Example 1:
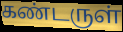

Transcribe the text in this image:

கண்டருள்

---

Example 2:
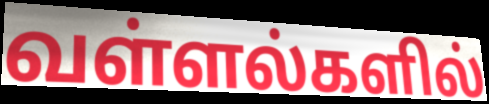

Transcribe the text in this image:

வள்ளல்களில்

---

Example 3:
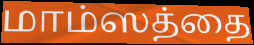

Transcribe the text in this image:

மாம்ஸத்தை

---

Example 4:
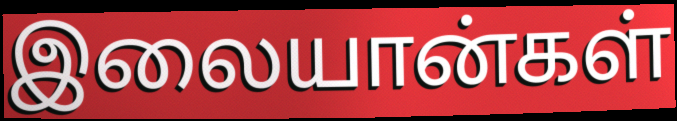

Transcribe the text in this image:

இலையான்கள்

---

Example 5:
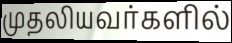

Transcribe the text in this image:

முதலியவர்களில்